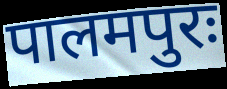
पालमपुरः